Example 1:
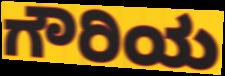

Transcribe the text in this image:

ಗೌರಿಯ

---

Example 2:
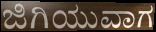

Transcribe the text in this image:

ಜಿಗಿಯುವಾಗ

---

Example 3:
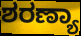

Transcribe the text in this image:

ಶರಣ್ಯಾ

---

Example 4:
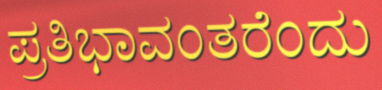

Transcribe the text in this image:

ಪ್ರತಿಭಾವಂತರೆಂದು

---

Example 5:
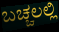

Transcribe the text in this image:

ಬಚ್ಚಲಲ್ಲಿ